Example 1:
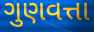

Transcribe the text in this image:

ગુણવત્તા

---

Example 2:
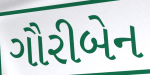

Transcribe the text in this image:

ગૌરીબેન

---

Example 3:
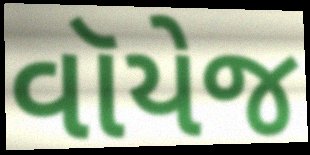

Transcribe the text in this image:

વૉયેજ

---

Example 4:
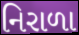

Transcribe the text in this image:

નિરાળા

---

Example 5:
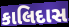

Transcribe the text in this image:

કાલિદાસ